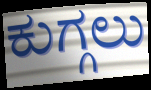
ಕುಗ್ಗಲು